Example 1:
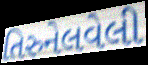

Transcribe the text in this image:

તિરુનેલવેલી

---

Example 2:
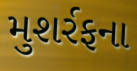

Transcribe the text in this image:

મુશર્રફના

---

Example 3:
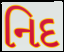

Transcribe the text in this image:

નિદ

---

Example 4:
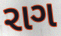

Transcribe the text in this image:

રાગ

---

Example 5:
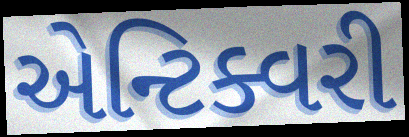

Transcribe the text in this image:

એન્ટિક્વરી